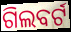
ଗିଲବର୍ଟ